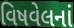
વિષવેલનાં